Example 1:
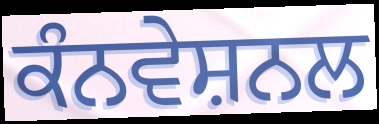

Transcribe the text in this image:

ਕੰਨਵੇਸ਼ਨਲ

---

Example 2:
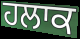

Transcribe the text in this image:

ਹਲਾਕ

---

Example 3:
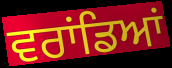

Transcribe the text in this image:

ਵਰਾਂਡਿਆਂ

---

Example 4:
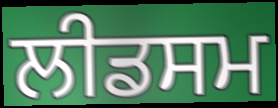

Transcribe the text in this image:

ਲੀਡਸਮ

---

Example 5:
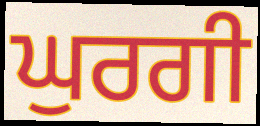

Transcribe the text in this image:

ਘੁਰਗੀ